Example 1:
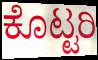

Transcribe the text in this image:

ಕೊಟ್ಟರಿ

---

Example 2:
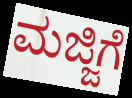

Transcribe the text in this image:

ಮಜ್ಜಿಗೆ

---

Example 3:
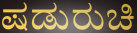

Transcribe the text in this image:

ಷಡುರುಚಿ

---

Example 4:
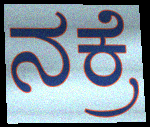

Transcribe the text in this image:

ನಕ್ರೆ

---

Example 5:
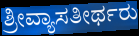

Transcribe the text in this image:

ಶ್ರೀವ್ಯಾಸತೀರ್ಥರು